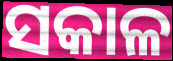
ସକାଳ